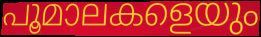
പൂമാലകളെയും